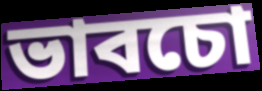
ভাবচো